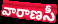
వారాణసీ